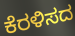
ಕೆರಳಿಸದ